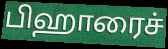
பிஹாரைச்